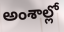
అంశాల్లో